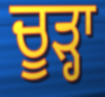
ਚੂੜ੍ਹਾ